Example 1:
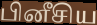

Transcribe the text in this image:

பினீசிய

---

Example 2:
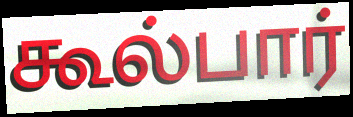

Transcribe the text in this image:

கூல்பார்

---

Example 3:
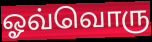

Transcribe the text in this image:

ஓவ்வொரு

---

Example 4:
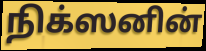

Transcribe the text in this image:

நிக்ஸனின்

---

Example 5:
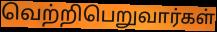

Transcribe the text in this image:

வெற்றிபெறுவார்கள்